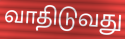
வாதிடுவது